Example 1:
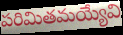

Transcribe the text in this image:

పరిమితమయ్యేవి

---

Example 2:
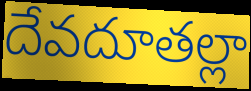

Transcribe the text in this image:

దేవదూతల్లా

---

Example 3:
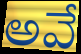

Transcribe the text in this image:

అవే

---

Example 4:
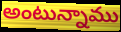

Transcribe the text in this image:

అంటున్నాము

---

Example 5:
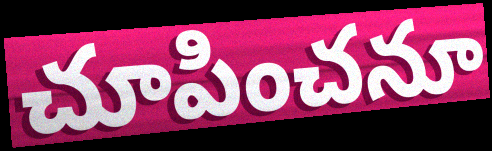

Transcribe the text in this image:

చూపించనూ